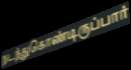
நடந்துகொண்டிருப்பார்